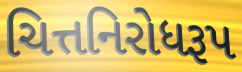
ચિત્તનિરોધરૂપ